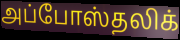
அப்போஸ்தலிக்